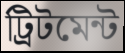
ট্রিটমেন্ট